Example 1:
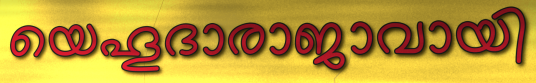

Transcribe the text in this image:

യെഹൂദാരാജാവായി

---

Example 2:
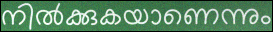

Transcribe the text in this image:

നിൽക്കുകയാണെന്നും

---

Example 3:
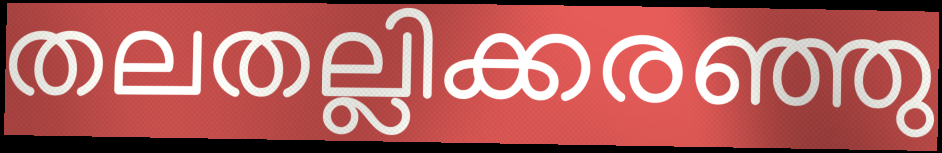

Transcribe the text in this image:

തലതല്ലിക്കരഞ്ഞു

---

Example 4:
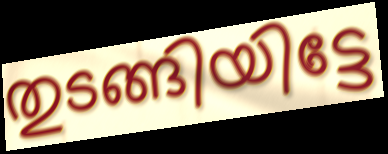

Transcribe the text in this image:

തുടങ്ങിയിട്ടേ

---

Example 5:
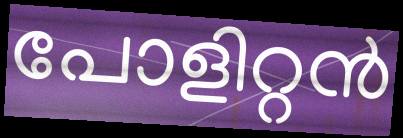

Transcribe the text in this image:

പോളിറ്റൻ